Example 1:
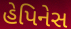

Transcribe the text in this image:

હેપિનેસ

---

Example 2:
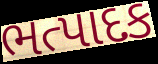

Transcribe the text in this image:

ભત્પાદક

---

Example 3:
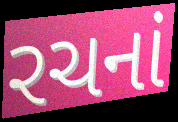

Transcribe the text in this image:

રચનાં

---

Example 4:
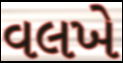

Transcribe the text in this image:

વલખે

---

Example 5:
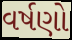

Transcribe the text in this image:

વર્ષણો